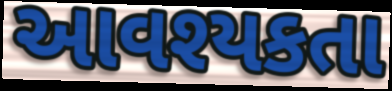
આવશ્યકતા